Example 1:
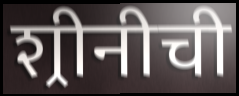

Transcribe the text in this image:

श्रीनीची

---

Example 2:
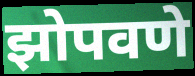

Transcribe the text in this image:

झोपवणे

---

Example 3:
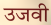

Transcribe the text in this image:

उजवी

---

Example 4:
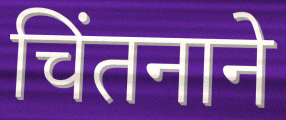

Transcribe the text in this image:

चिंतनाने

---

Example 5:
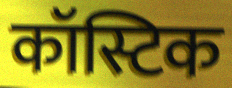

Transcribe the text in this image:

कॉस्टिक